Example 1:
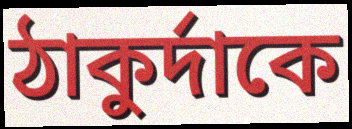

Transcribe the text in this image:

ঠাকুর্দাকে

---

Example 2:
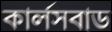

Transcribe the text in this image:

কার্লসবাড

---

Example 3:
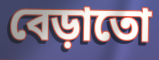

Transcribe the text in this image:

বেড়াতো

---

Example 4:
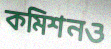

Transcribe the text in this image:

কমিশনও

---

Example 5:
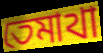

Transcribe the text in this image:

তেমাথা